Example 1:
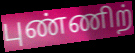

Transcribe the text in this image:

புண்ணிற்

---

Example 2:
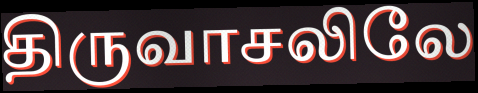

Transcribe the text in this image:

திருவாசலிலே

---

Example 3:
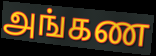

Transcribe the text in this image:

அங்கண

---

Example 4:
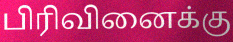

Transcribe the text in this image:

பிரிவினைக்கு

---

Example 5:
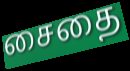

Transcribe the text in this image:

சைதை